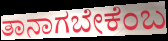
ತಾನಾಗಬೇಕೆಂಬ